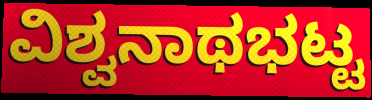
ವಿಶ್ವನಾಥಭಟ್ಟ